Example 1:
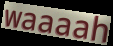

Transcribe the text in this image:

waaaah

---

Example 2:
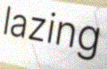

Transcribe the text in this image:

lazing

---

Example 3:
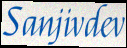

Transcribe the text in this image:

Sanjivdev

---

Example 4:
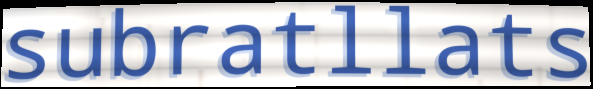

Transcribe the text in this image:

subratllats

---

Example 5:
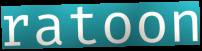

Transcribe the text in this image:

ratoon